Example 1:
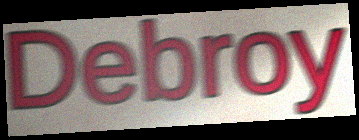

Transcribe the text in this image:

Debroy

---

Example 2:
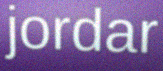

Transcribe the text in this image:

jordar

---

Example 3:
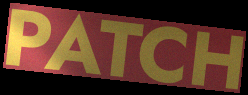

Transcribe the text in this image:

PATCH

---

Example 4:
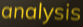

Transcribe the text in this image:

analysis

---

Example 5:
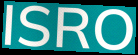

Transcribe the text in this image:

ISRO